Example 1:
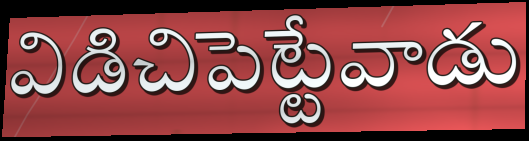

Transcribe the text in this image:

విడిచిపెట్టేవాడు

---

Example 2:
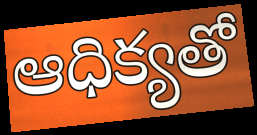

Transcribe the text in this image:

ఆధిక్యతో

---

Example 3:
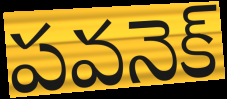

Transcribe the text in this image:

పవనెక్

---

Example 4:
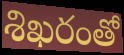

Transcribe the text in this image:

శిఖరంతో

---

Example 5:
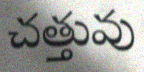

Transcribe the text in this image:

చత్తువు